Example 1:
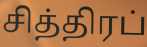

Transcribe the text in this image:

சித்திரப்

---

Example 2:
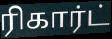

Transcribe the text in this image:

ரிகார்ட்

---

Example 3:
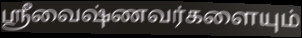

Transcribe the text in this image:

ஸ்ரீவைஷ்ணவர்களையும்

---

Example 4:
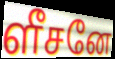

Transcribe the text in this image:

ளீசனே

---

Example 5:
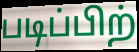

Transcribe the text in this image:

படிப்பிற்